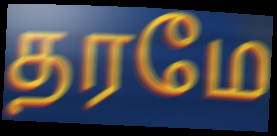
தரமே